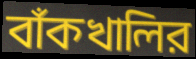
বাঁকখালির